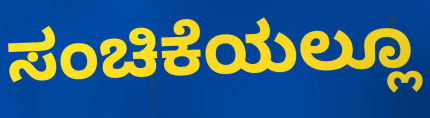
ಸಂಚಿಕೆಯಲ್ಲೂ